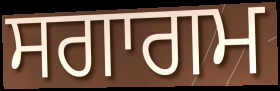
ਸਗਾਗਮ